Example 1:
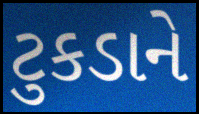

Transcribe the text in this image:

ટુકડાને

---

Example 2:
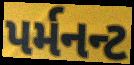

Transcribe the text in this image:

પર્મનન્ટ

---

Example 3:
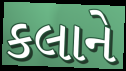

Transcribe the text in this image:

કલાને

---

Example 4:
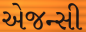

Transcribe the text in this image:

એજન્સી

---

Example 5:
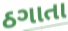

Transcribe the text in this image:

ઠગાતા